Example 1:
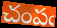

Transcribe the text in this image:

చంపఁ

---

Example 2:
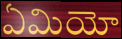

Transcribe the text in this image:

ఏమియో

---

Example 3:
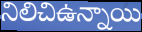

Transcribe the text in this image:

నిలిచిఉన్నాయి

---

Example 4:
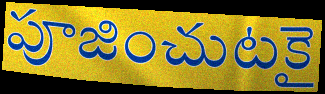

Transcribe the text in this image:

పూజించుటకై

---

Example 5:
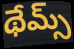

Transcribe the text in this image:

థేమ్స్